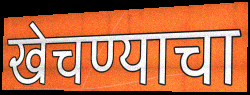
खेचण्याचा